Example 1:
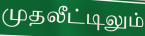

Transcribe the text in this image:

முதலீட்டிலும்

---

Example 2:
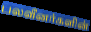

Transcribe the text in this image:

பலவீனர்களின்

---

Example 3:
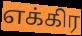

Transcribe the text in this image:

எக்கிர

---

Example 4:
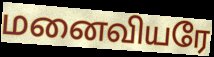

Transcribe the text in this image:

மனைவியரே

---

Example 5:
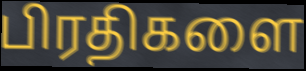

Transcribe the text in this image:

பிரதிகளை